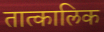
तात्कालिक